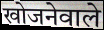
खोजनेवाले